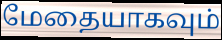
மேதையாகவும்